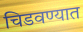
चिडवण्यात